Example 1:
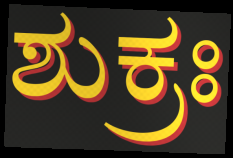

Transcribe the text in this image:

ಶುಕ್ರಃ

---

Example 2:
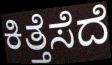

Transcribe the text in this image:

ಕಿತ್ತೆಸೆದೆ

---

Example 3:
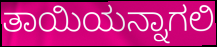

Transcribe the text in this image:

ತಾಯಿಯನ್ನಾಗಲಿ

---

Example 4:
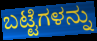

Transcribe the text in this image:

ಬಟ್ಟೆಗಳನ್ನು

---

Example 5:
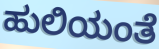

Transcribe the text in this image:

ಹುಲಿಯಂತೆ